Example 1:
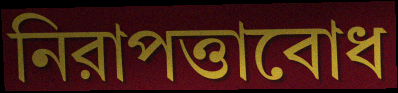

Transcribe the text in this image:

নিরাপত্তাবোধ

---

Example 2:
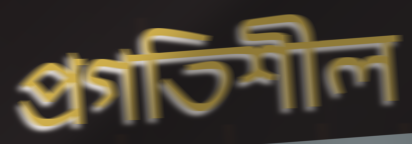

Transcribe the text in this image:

প্রগতিশীল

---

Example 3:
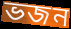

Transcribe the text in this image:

ভজন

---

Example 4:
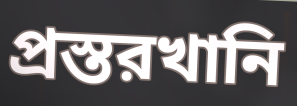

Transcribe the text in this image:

প্রস্তরখানি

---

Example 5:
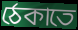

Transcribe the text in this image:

ঠেকাতে